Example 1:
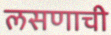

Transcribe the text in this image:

लसणाची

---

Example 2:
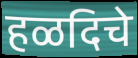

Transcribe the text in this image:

हळदिचे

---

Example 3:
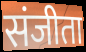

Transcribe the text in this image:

संजीता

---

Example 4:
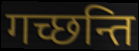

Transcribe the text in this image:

गच्छन्ति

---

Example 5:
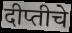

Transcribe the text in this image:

दीप्तीचे